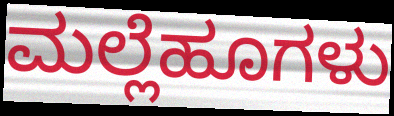
ಮಲ್ಲೆಹೂಗಳು